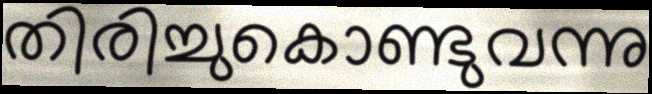
തിരിച്ചുകൊണ്ടുവന്നു